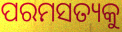
ପରମସତ୍ୟକୁ